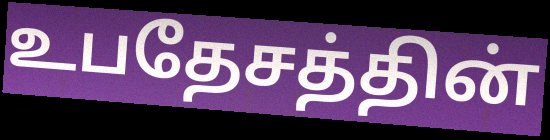
உபதேசத்தின்